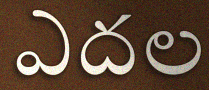
ఎదల